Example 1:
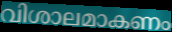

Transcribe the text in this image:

വിശാലമാകണം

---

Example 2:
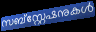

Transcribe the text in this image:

സബ്സ്റ്റേഷനുകൾ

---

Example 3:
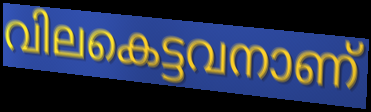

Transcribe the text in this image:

വിലകെട്ടവനാണ്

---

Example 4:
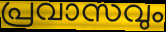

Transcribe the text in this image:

പ്രവാസവും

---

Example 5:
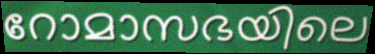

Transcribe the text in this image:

റോമാസഭയിലെ